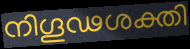
നിഗൂഢശക്തി